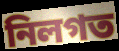
নিলগত